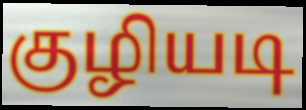
குழியடி